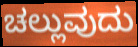
ಚಲ್ಲುವುದು